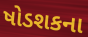
ષોડશકના